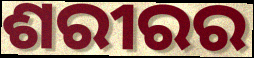
ଶରୀରର